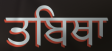
ਤਬਿਥਾ